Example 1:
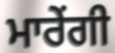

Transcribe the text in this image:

ਮਾਰੇਂਗੀ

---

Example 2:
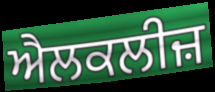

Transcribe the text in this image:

ਐਲਕਲੀਜ਼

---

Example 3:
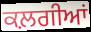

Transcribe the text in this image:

ਕਲ਼ਗੀਆਂ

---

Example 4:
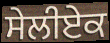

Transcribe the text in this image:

ਸੇਲੀਏਕ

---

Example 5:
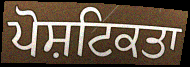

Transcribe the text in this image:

ਪੋਸ਼ਟਿਕਤਾ